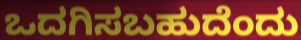
ಒದಗಿಸಬಹುದೆಂದು